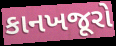
કાનખજૂરો